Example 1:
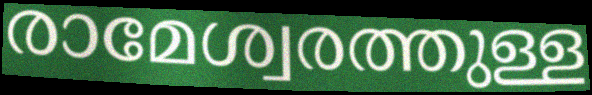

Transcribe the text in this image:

രാമേശ്വരത്തുള്ള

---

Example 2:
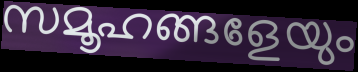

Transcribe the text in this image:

സമൂഹങ്ങളേയും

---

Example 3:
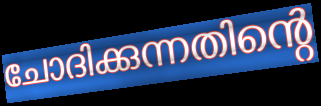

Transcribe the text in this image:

ചോദിക്കുന്നതിന്റെ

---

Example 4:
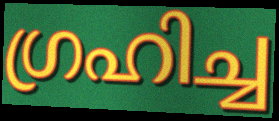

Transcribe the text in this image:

ഗ്രഹിച്ച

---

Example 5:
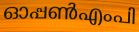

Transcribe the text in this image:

ഓപ്പൺഎംപി